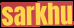
sarkhu